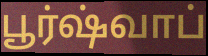
பூர்ஷ்வாப்